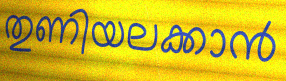
തുണിയലക്കാൻ